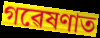
গৱেষণাত